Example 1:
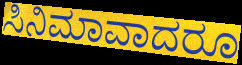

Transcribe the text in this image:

ಸಿನಿಮಾವಾದರೂ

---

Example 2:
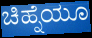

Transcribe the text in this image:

ಚಿಹ್ನೆಯೂ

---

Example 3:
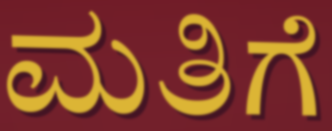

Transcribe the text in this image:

ಮತಿಗೆ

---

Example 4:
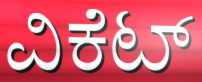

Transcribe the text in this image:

ವಿಕೆಟ್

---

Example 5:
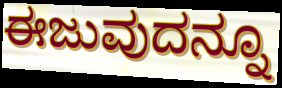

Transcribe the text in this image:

ಈಜುವುದನ್ನೂ